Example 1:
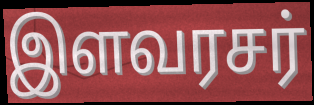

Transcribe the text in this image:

இளவரசர்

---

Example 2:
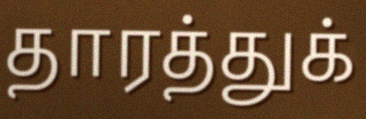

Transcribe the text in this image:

தாரத்துக்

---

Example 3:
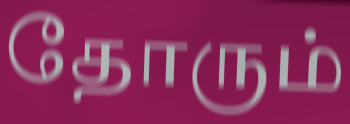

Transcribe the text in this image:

தோரும்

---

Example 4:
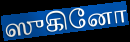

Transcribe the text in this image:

ஸுகினோ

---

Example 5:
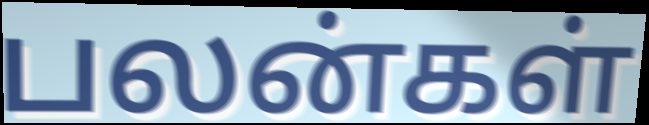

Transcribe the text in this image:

பலன்கள்